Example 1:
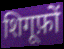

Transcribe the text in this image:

शिगूफ़ों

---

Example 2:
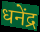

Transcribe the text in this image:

धनेंद्र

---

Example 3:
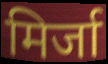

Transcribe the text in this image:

मिर्जा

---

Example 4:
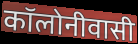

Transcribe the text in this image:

कॉलोनीवासी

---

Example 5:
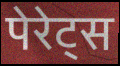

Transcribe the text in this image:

पेरेट्स